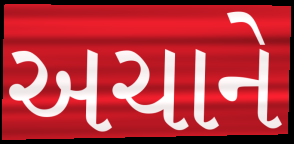
અચાને